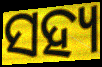
ସହ୍ଯ